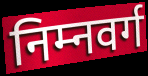
निम्नवर्ग